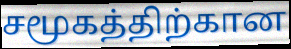
சமூகத்திற்கான